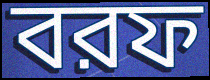
বরফ